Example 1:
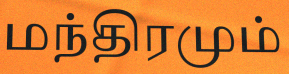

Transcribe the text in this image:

மந்திரமும்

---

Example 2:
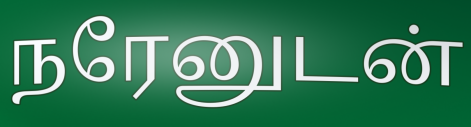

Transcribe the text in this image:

நரேனுடன்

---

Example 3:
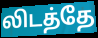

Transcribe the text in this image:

லிடத்தே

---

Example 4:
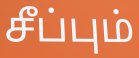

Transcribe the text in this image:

சீப்பும்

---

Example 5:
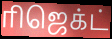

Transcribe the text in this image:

ரிஜெக்ட்